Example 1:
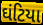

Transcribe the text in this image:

ઘંટિયા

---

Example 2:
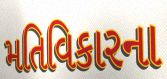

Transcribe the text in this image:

મતિવિકારના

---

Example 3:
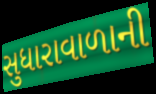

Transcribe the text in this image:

સુધારાવાળાની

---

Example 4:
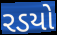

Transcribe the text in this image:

રડયો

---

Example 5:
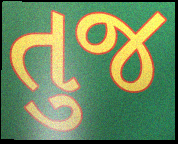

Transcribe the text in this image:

તુજ